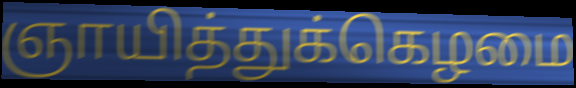
ஞாயித்துக்கெழமை